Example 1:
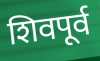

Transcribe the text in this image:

शिवपूर्व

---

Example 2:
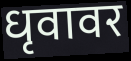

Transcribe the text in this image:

धृवावर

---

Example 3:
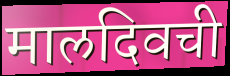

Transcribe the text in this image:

मालदिवची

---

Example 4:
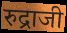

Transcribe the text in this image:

रुद्राजी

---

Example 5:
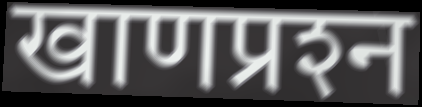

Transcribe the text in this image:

खाणप्रश्न